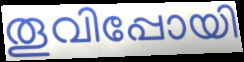
തൂവിപ്പോയി